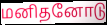
மனிதனோடு